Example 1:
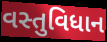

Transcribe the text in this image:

વસ્તુવિધાન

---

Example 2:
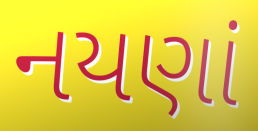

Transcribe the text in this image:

નયણાં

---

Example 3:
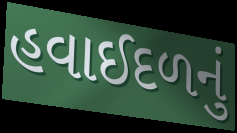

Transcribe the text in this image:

હવાઈદળનું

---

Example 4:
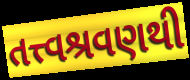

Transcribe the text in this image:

તત્ત્વશ્રવણથી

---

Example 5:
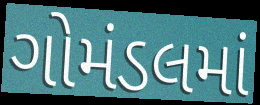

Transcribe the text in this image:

ગોમંડલમાં